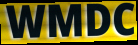
WMDC